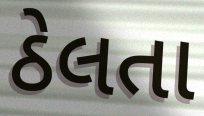
ઠેલતા